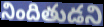
నిందితుడని